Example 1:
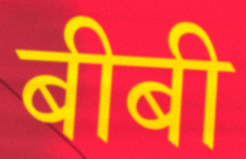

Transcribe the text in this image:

बीबी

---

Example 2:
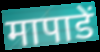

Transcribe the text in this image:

मापाडें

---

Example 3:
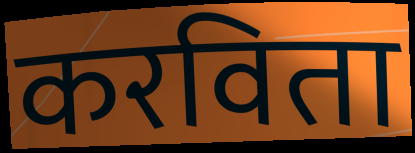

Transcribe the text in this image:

करविता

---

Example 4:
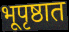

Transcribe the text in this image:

भूपृष्ठात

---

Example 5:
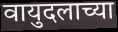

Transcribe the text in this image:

वायुदलाच्या